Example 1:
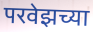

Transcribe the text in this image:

परवेझच्या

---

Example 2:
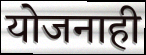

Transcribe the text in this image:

योजनाही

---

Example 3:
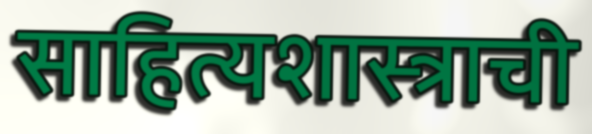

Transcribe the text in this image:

साहित्यशास्त्राची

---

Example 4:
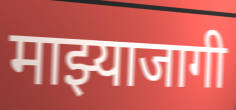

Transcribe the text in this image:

माझ्याजागी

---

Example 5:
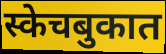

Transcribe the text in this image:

स्केचबुकात